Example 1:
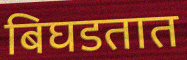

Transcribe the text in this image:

बिघडतात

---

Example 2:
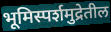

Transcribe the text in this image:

भूमिस्पर्शमुद्रेतील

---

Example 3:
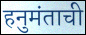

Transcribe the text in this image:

हनुमंताची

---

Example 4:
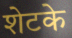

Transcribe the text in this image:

शेटके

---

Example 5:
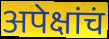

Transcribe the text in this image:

अपेक्षांचं